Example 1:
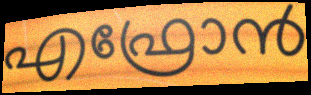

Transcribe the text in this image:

എഫ്രോൻ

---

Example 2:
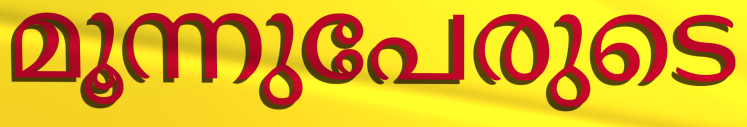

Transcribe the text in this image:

മൂന്നുപേരുടെ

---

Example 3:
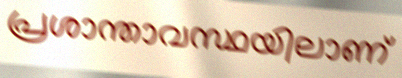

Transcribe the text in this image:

പ്രശാന്താവസ്ഥയിലാണ്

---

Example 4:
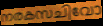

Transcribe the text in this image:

നരകസചിവോ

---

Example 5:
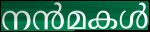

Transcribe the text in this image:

നൻമകൾ